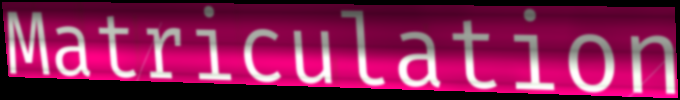
Matriculation